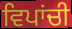
ਵਿਪਾਂਚੀ